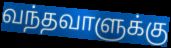
வந்தவாளுக்கு